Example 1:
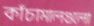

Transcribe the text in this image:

কাঁচামালগুলো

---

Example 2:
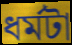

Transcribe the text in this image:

ধর্মটা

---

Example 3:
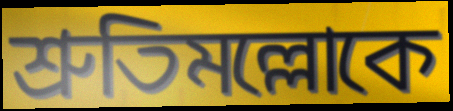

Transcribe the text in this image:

শ্রুতিমল্লোকে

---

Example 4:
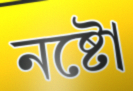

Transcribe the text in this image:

নষ্টো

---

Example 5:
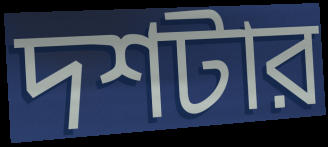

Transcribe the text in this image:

দশটার